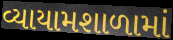
વ્યાયામશાળામાં